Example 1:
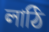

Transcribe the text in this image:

লাঠি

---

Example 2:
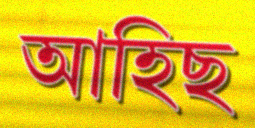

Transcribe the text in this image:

আহিছ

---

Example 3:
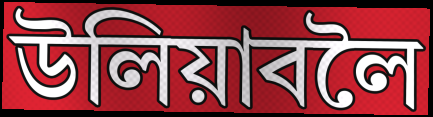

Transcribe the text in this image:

উলিয়াবলৈ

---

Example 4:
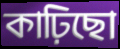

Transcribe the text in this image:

কাঢ়িছো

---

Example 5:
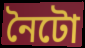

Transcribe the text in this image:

নৈটো